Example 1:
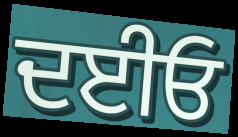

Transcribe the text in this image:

ਦਈਓ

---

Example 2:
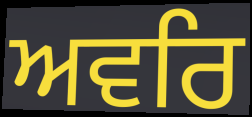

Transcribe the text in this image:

ਅਵਰਿ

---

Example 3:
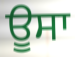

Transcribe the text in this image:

ਊਸਾ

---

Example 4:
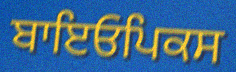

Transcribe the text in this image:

ਬਾਇਓਪਿਕਸ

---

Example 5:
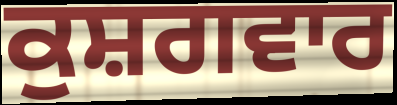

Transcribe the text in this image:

ਕੁਸ਼ਗਵਾਰ